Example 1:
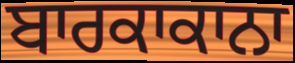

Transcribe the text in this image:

ਬਾਰਕਾਕਾਨਾ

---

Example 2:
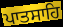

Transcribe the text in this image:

ਪਾਤਸਾਹਿ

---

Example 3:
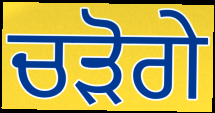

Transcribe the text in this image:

ਚੜੋਗੇ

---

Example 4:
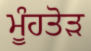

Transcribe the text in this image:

ਮੂੰਹਤੋੜ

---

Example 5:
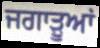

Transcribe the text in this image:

ਜਗਾੜੂਆਂ